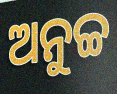
ଅନୁଚ୍ଚ